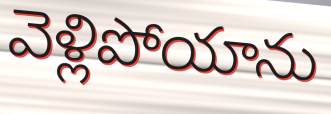
వెళ్లిపోయాను